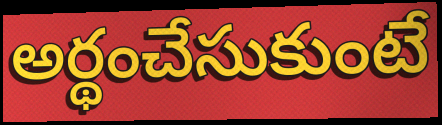
అర్థంచేసుకుంటే